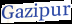
Gazipur